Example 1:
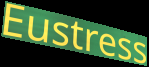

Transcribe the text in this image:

Eustress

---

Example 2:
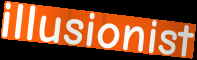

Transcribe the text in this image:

illusionist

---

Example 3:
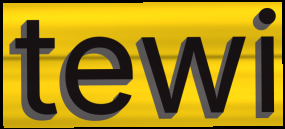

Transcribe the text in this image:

tewi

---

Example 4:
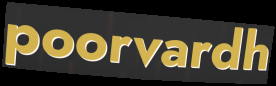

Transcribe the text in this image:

poorvardh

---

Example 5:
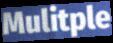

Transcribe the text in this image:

Mulitple